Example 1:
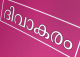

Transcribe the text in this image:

ദിവാകരം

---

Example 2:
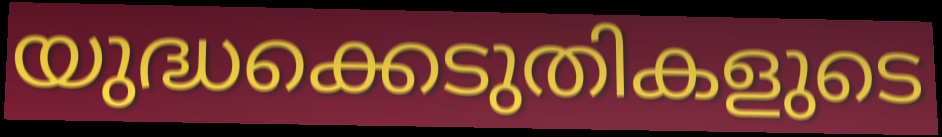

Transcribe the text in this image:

യുദ്ധക്കെടുതികളുടെ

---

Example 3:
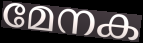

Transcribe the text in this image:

മേനക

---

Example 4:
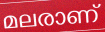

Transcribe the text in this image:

മലരാണ്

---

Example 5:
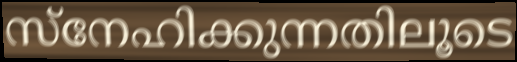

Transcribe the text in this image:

സ്നേഹിക്കുന്നതിലൂടെ